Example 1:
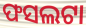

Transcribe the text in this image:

ଫସଲଟା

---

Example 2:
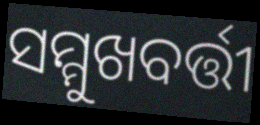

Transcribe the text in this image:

ସମ୍ମୁଖବର୍ତ୍ତୀ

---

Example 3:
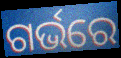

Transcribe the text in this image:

ଗର୍ଭରେ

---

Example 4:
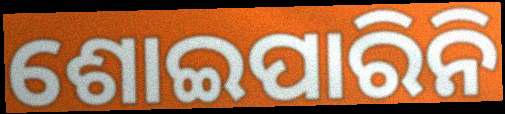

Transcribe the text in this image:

ଶୋଇପାରିନି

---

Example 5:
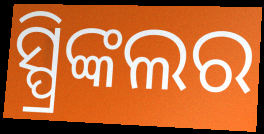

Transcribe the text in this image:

ସ୍ପ୍ରିଙ୍କଲର